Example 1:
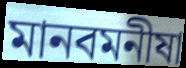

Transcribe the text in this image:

মানবমনীষা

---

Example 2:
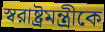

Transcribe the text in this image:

স্বরাষ্ট্রমন্ত্রীকে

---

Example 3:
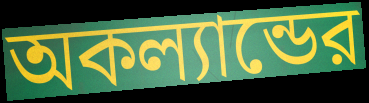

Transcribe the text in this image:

অকল্যান্ডের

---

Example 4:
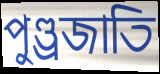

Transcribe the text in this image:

পুণ্ড্রজাতি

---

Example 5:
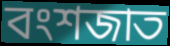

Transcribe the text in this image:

বংশজাত